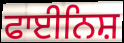
ਫਾਈਨਿਸ਼